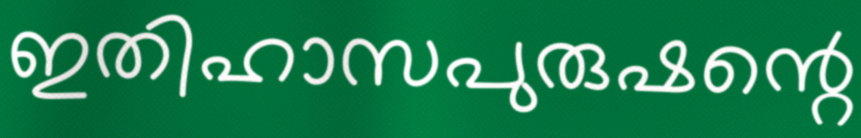
ഇതിഹാസപുരുഷന്റെ